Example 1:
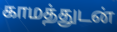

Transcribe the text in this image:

காமத்துடன்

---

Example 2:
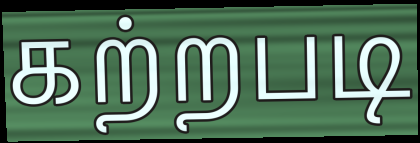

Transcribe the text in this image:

கற்றபடி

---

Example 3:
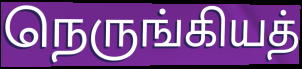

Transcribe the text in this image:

நெருங்கியத்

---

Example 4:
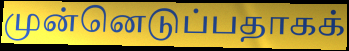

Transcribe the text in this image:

முன்னெடுப்பதாகக்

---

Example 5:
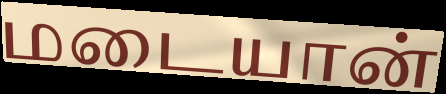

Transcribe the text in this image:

மடையான்